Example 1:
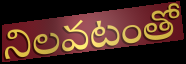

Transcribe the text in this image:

నిలవటంతో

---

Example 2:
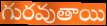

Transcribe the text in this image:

గురవుతాయి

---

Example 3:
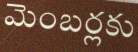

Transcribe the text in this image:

మెంబర్లకు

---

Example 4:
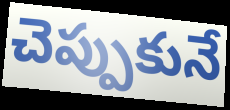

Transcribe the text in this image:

చెప్పుకునే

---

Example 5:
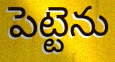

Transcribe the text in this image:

పెట్టెను